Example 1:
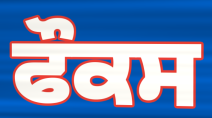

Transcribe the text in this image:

ਫੌਕਸ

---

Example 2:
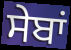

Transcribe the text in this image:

ਸੇਬਾਂ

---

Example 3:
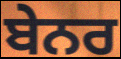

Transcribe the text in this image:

ਬੇਨਰ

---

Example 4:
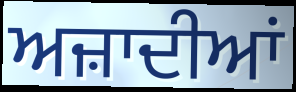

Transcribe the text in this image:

ਅਜ਼ਾਦੀਆਂ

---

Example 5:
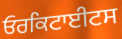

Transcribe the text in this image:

ਓਰਕਿਟਾਈਟਸ